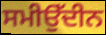
ਸਮੀਉੱਦੀਨ